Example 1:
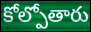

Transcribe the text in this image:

కోల్పోతారు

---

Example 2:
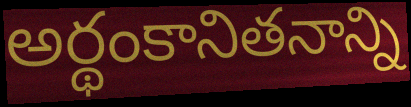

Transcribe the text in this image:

అర్థంకానితనాన్ని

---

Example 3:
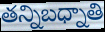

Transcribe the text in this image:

తన్నిబధ్నాతి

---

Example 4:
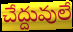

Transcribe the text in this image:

చేద్దువులే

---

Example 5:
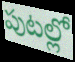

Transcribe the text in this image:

పుటల్లో